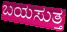
ಬಯಸುತ್ತ